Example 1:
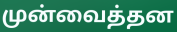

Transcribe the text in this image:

முன்வைத்தன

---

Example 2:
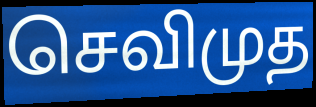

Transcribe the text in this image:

செவிமுத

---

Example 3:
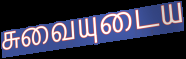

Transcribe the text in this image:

சுவையுடைய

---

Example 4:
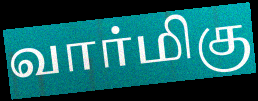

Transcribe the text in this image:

வார்மிகு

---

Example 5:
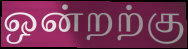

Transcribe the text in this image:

ஒன்றற்கு